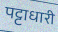
पट्टाधारी